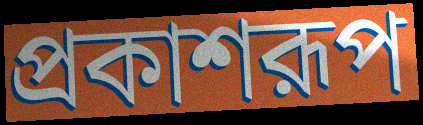
প্রকাশরূপ